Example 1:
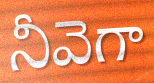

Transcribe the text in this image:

నీవెగా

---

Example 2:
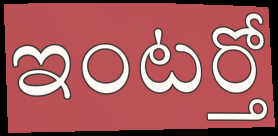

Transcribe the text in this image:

ఇంటర్తో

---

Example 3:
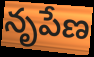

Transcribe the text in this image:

నృపేణ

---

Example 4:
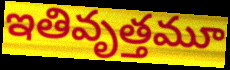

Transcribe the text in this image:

ఇతివృత్తమూ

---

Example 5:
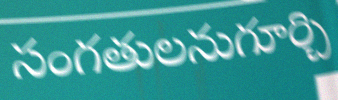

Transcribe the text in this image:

సంగతులనుగూర్చి